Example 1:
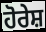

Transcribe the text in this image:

ਹੋਰੇਸ਼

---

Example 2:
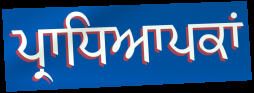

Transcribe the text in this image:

ਪ੍ਰਾਧਿਆਪਕਾਂ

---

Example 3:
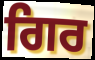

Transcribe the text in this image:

ਗਿਰ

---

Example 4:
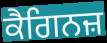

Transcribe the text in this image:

ਕੈਗਿਨਜ਼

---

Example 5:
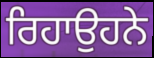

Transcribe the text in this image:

ਰਿਹਾਉਹਨੇ